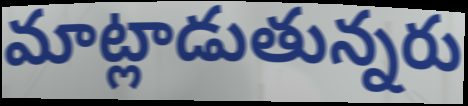
మాట్లాడుతున్నరు